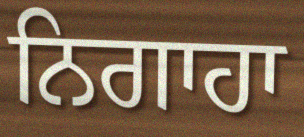
ਨਿਗਾਹਾ